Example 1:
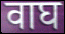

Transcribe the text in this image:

वाघ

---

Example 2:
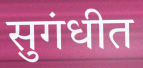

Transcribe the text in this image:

सुगंधीत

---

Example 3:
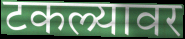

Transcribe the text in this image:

टकल्यावर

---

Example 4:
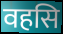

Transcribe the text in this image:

वहसि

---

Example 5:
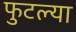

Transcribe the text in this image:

फुटल्या